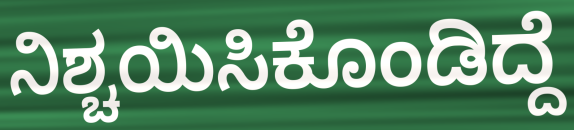
ನಿಶ್ಚಯಿಸಿಕೊಂಡಿದ್ದೆ